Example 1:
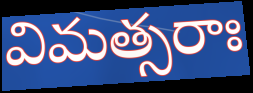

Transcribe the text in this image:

విమత్సరాః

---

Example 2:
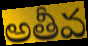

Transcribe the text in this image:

అతీవ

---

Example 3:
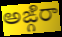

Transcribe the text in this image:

అఙ్గిరా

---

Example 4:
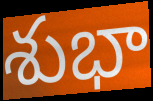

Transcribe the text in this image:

శుభా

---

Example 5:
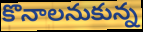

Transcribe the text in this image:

కొనాలనుకున్న